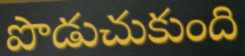
పొడుచుకుంది